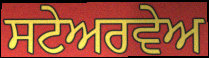
ਸਟੇਅਰਵੇਅ